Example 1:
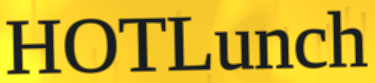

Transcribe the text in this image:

HOTLunch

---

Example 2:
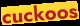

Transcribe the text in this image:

cuckoos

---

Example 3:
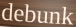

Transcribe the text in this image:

debunk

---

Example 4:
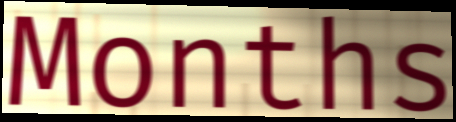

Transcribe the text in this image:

Months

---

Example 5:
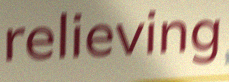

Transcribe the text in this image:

relieving